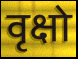
वृक्षो